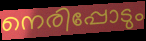
നെരിപ്പോടും